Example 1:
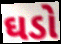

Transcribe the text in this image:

ઘડો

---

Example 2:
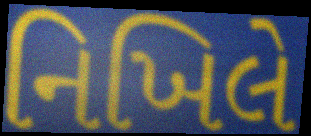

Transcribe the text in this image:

નિખિલે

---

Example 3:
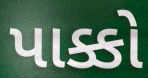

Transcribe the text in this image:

પાક્કો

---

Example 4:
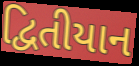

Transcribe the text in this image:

દ્વિતીયાન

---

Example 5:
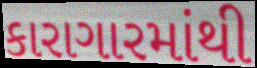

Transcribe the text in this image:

કારાગારમાંથી